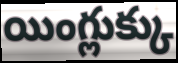
యింగ్లుక్కు